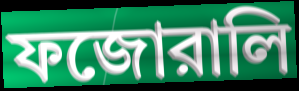
ফজোরালি